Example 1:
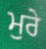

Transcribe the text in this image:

ਮੁਰੇ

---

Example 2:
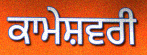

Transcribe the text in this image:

ਕਾਮੇਸ਼ਵਰੀ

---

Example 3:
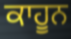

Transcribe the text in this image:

ਕਾਹੂਨ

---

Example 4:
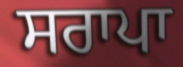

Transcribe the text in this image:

ਸਰਾਪਾ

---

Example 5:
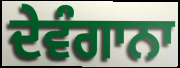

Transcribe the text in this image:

ਦੇਵੰਗਾਨਾ